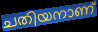
ചതിയനാണ്